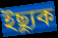
ইছ্যুক